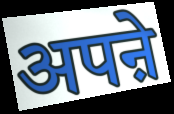
अपऩे